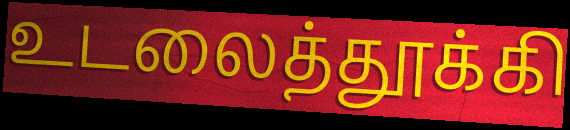
உடலைத்தூக்கி